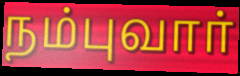
நம்புவார்